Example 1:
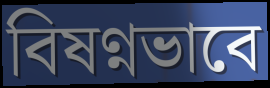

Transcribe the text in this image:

বিষণ্নভাবে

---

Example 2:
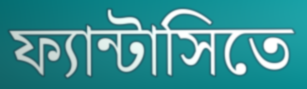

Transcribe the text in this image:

ফ্যান্টাসিতে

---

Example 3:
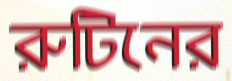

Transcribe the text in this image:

রুটিনের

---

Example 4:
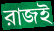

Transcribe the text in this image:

রাজই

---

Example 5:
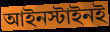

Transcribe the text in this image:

আইনস্টাইনই